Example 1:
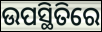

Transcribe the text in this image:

ଉପସ୍ଥିତିରେ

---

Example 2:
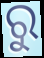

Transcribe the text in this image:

ରୁ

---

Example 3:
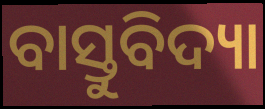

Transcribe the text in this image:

ବାସ୍ତୁବିଦ୍ୟା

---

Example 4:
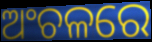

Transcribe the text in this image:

ଅଂଚଳରେ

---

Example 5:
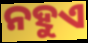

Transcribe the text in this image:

ନହୁଏ